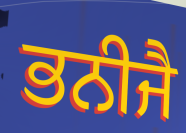
ਭਨੀਜੈ